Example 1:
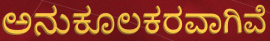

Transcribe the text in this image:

ಅನುಕೂಲಕರವಾಗಿವೆ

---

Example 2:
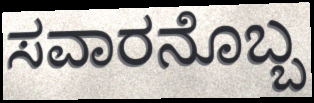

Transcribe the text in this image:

ಸವಾರನೊಬ್ಬ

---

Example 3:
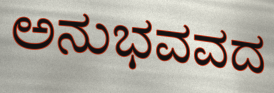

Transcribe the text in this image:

ಅನುಭವವದ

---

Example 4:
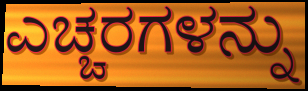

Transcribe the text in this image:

ಎಚ್ಚರಗಳನ್ನು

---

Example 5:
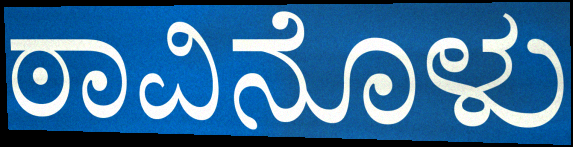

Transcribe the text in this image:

ಠಾವಿನೊಳು